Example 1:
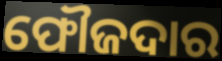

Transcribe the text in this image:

ଫୌଜଦାର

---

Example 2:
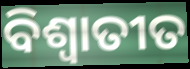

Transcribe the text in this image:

ବିଶ୍ୱାତୀତ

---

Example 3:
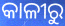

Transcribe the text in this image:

କାଳୀରୁ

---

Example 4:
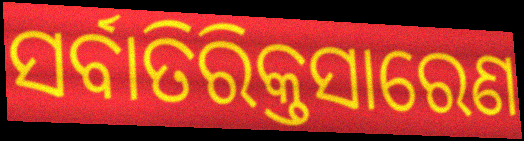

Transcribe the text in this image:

ସର୍ବାତିରିକ୍ତସାରେଣ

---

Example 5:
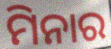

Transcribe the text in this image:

ମିନାର